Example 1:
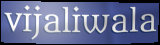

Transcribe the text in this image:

vijaliwala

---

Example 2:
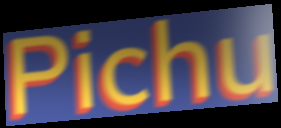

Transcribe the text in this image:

Pichu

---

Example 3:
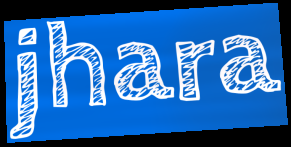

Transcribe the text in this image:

jhara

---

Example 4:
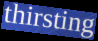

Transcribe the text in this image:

thirsting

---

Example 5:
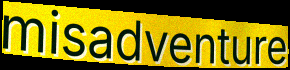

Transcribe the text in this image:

misadventure